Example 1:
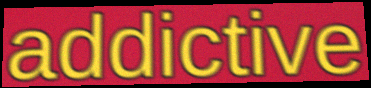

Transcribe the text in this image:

addictive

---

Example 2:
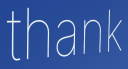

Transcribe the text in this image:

thank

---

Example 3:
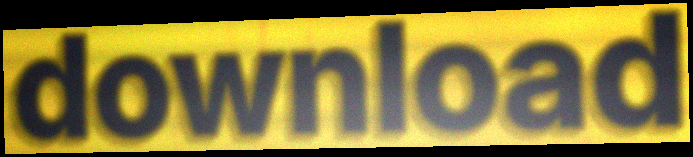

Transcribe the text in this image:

download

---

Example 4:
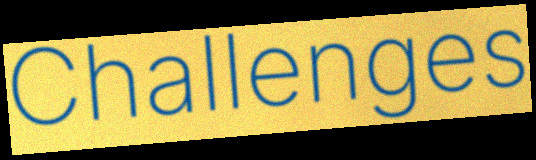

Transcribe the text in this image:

Challenges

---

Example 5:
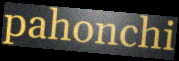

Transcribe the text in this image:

pahonchi